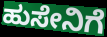
ಹುಸೇನಿಗೆ